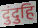
दुंदुहि